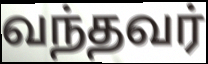
வந்தவர்